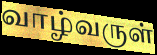
வாழ்வருள்